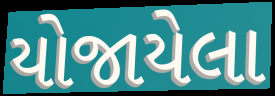
યોજાયેલા